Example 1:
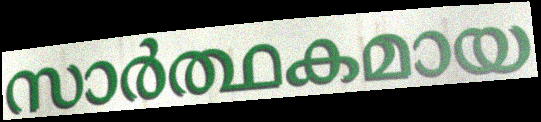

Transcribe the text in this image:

സാർത്ഥകമായ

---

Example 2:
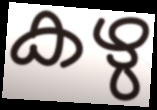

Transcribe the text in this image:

കഴു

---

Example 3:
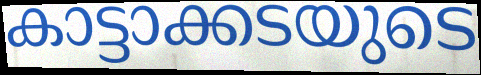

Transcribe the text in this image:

കാട്ടാക്കടയുടെ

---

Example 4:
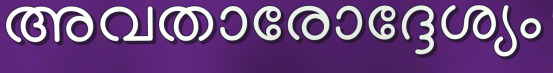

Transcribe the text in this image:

അവതാരോദ്ദേശ്യം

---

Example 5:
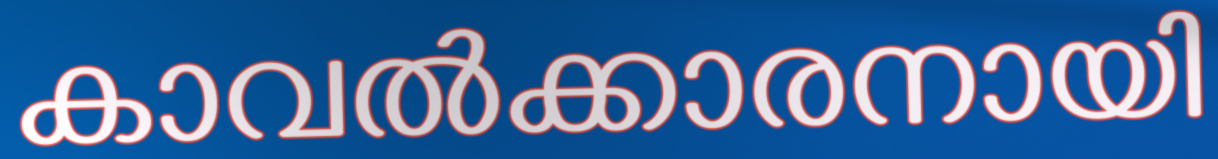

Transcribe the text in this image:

കാവൽക്കാരനായി